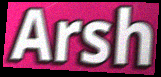
Arsh